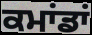
ਕਮਾਂਡਾਂ